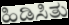
ಹಿಡಿಸಿತು